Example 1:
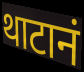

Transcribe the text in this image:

थाटानं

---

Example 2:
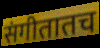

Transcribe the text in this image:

संगीतातच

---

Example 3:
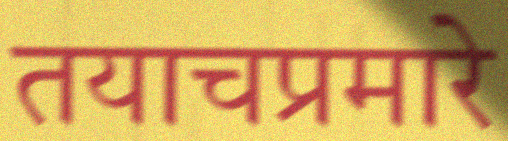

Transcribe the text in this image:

तयाचप्रमारे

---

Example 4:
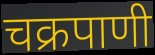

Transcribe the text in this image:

चक्रपाणी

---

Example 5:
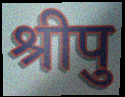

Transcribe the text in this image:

श्रीपु